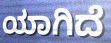
ಯಾಗಿದೆ